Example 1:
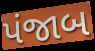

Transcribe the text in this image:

પંજાબ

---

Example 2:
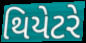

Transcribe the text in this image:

થિયેટરે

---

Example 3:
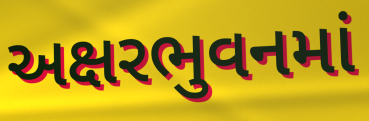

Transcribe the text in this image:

અક્ષરભુવનમાં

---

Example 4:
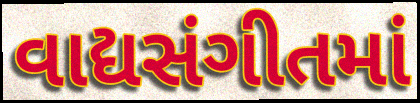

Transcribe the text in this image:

વાદ્યસંગીતમાં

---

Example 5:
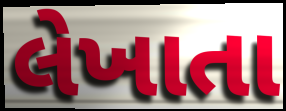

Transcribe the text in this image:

લેખાતા